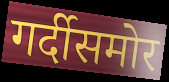
गर्दीसमोर